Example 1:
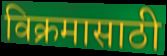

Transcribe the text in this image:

विक्रमासाठी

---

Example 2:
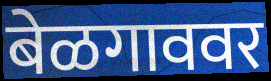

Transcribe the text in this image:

बेळगाववर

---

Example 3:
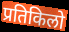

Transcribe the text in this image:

प्रतिकिलो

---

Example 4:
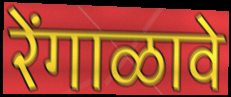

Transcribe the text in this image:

रेंगाळावे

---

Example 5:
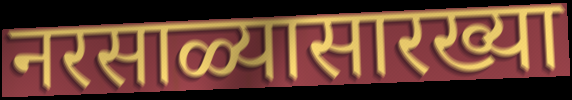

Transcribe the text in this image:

नरसाळ्यासारख्या